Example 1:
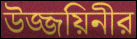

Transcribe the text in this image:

উজ্জয়িনীর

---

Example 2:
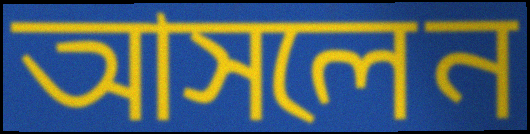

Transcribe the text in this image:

আসলেন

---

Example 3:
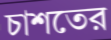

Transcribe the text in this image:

চাশতের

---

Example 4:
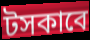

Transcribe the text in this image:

টসকাবে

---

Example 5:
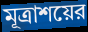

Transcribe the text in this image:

মূত্রাশয়ের